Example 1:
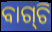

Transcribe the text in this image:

ବାଗ୍‌ଚି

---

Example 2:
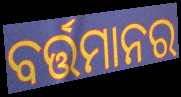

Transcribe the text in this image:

ବର୍ତ୍ତମାନର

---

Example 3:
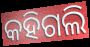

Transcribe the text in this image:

କହିଗଲି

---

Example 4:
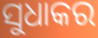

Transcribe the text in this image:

ସୁଧାକର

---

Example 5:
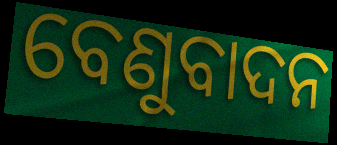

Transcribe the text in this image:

ବେଣୁବାଦନ